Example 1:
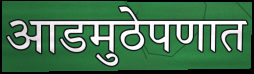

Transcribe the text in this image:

आडमुठेपणात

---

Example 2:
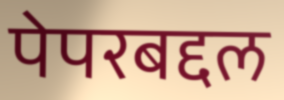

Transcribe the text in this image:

पेपरबद्दल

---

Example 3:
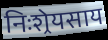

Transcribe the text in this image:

निःश्रेयसाय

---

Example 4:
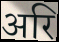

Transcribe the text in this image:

अरि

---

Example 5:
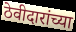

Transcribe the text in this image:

ठेवीदारांच्या